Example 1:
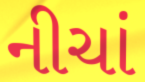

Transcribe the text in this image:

નીચાં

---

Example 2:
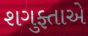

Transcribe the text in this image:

શગુફ્તાએ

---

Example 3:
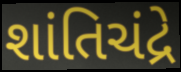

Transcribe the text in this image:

શાંતિચંદ્રે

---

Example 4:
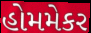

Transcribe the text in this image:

હોમમેકર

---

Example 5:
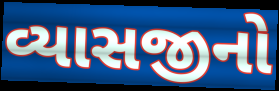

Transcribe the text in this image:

વ્યાસજીનો